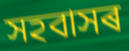
সহবাসৰ